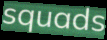
squads